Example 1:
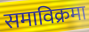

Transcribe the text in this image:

समाविक्रमा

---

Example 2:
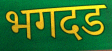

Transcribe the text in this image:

भगदड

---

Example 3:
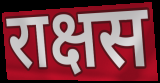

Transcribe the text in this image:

राक्षस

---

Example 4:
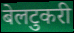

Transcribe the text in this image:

बेलटुकरी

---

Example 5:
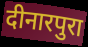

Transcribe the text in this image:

दीनारपुरा